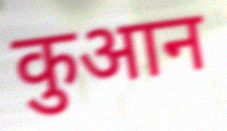
कुआन